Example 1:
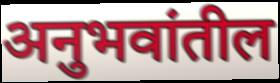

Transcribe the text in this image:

अनुभवांतील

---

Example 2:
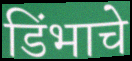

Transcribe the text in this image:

डिंभाचे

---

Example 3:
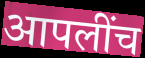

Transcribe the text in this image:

आपलींच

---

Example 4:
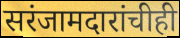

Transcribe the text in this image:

सरंजामदारांचीही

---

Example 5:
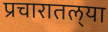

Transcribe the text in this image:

प्रचारातल्या